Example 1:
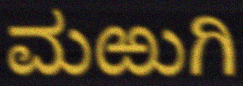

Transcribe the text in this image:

ಮಱುಗಿ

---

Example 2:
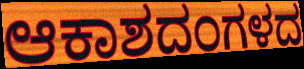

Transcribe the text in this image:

ಆಕಾಶದಂಗಳದ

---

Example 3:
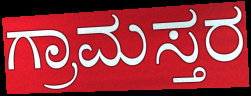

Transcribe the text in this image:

ಗ್ರಾಮಸ್ತರ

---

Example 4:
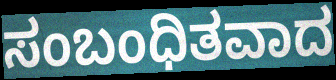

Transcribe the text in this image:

ಸಂಬಂಧಿತವಾದ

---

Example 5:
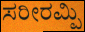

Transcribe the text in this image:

ಸರೀರಮ್ಪಿ